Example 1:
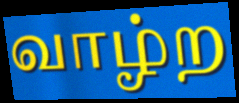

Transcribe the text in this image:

வாழ்ற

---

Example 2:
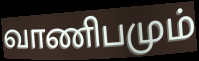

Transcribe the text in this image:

வாணிபமும்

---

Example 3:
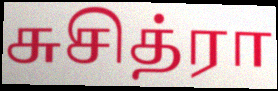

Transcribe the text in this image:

சுசித்ரா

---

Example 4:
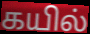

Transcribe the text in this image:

கயில்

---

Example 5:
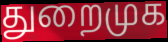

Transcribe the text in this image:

துறைமுக